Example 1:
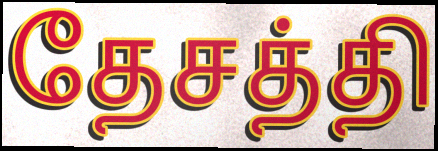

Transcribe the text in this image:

தேசத்தி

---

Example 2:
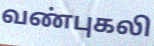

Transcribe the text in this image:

வண்புகலி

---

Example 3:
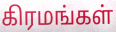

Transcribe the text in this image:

கிரமங்கள்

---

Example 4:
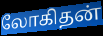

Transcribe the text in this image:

லோகிதன்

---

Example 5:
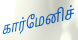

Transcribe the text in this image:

கார்மேனிச்